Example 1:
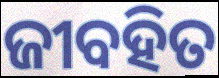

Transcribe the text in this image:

ଜୀବହିତ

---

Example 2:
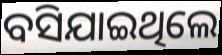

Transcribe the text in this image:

ବସିଯାଇଥିଲେ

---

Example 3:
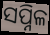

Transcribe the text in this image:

ସପ୍ନିଳ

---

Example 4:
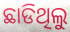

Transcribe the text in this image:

ଛାଡିଥିଲୁ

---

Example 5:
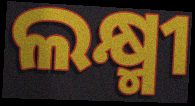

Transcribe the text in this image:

ଲକ୍ଷ୍ମୀ